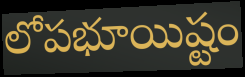
లోపభూయిష్టం